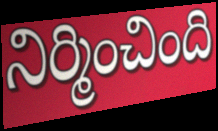
నిర్మించింది